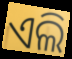
ଏଲି